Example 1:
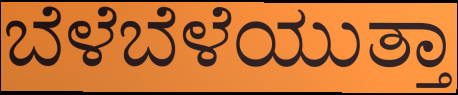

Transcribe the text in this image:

ಬೆಳೆಬೆಳೆಯುತ್ತಾ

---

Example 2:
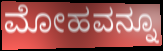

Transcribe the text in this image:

ಮೋಹವನ್ನೂ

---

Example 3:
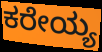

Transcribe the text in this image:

ಕರೇಯ್ಯ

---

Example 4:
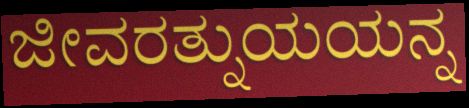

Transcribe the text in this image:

ಜೀವರತ್ನುಯಯನ್ನ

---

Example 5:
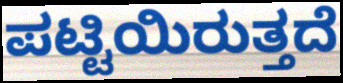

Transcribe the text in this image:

ಪಟ್ಟಿಯಿರುತ್ತದೆ